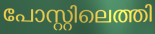
പോസ്റ്റിലെത്തി